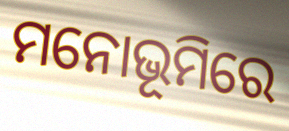
ମନୋଭୂମିରେ